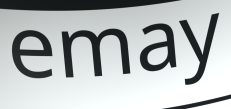
emay